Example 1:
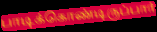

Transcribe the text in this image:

பாடிக்கொண்டிருப்பார்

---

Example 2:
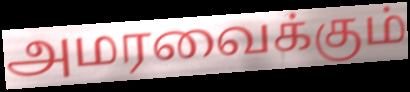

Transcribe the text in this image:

அமரவைக்கும்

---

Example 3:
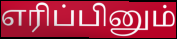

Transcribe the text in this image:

எரிப்பினும்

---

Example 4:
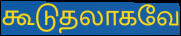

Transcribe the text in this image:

கூடுதலாகவே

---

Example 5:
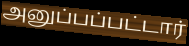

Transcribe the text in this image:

அனுப்பப்பட்டார்